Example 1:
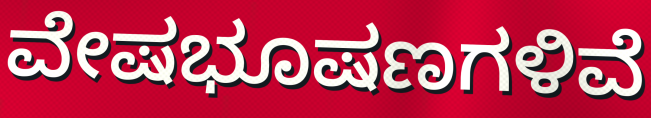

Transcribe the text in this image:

ವೇಷಭೂಷಣಗಳಿವೆ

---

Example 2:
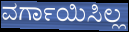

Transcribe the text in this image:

ವರ್ಗಾಯಿಸಿಲ್ಲ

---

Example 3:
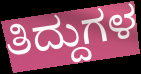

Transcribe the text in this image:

ತಿದ್ದುಗಳ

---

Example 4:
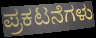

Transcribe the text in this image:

ಪ್ರಕಟನೆಗಳು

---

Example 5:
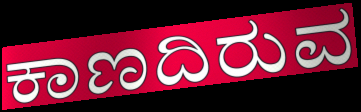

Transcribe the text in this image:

ಕಾಣದಿರುವ